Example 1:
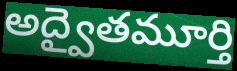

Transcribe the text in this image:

అద్వైతమూర్తి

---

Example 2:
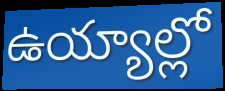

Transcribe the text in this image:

ఉయ్యాల్లో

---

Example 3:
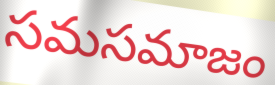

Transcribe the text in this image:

సమసమాజం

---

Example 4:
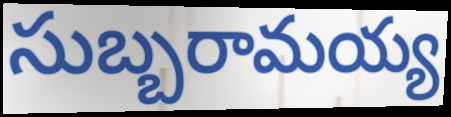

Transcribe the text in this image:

సుబ్బరామయ్య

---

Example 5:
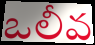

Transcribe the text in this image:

ఒలీవ